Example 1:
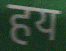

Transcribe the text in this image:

हय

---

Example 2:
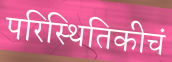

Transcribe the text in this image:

परिस्थितिकीचं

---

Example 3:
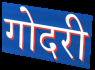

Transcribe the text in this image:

गोदरी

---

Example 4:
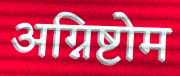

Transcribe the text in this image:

अग्निष्टोम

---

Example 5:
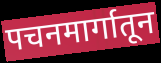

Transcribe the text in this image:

पचनमार्गातून